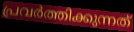
പ്രവർത്തിക്കുന്നത്